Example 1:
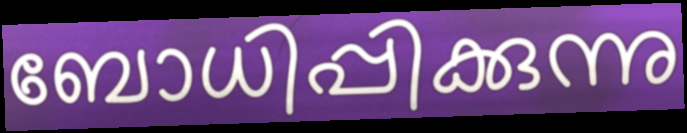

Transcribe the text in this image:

ബോധിപ്പിക്കുന്നു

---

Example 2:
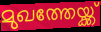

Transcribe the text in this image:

മുഖത്തേയ്ക്ക്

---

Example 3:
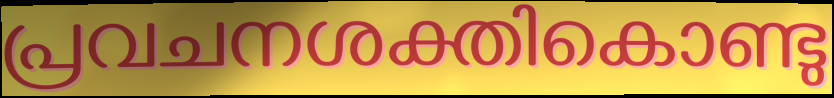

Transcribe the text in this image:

പ്രവചനശക്തികൊണ്ടു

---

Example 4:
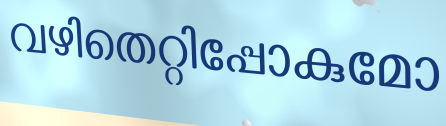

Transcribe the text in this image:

വഴിതെറ്റിപ്പോകുമോ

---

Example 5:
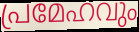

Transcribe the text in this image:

പ്രമേഹവും